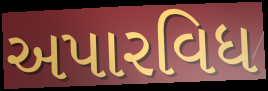
અપારવિધ